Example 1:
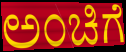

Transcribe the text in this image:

ಅಂಚಿಗೆ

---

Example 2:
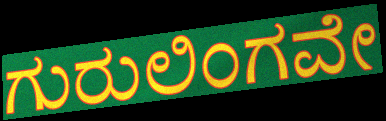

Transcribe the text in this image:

ಗುರುಲಿಂಗವೇ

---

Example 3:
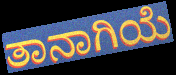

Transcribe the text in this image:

ತಾನಾಗಿಯೆ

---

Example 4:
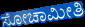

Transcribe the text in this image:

ಸೋಚಾಮೀತಿ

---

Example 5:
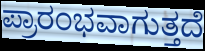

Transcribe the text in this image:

ಪ್ರಾರಂಭವಾಗುತ್ತದೆ